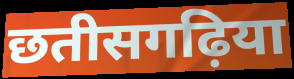
छतीसगढ़िया